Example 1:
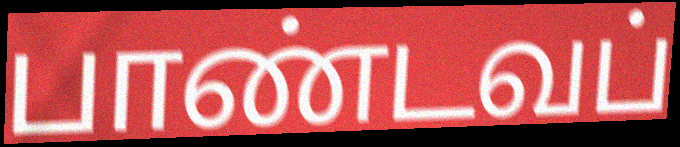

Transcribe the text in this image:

பாண்டவப்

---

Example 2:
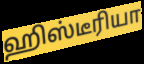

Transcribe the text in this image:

ஹிஸ்டீரியா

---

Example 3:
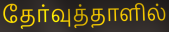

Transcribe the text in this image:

தேர்வுத்தாளில்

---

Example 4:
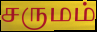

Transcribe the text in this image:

சருமம்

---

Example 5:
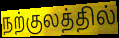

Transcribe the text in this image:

நற்குலத்தில்